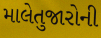
માલેતુજારોની